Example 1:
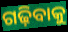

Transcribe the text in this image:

ଗଢ଼ିବାକୁ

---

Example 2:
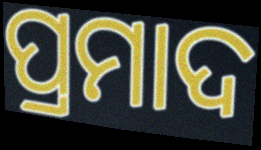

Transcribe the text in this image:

ପ୍ରମାଦ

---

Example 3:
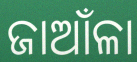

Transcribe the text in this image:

ଜାଆଁଳା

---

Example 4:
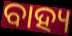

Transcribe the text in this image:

ବାହ୍ୟ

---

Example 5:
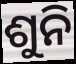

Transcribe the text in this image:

ଶୁନି